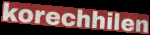
korechhilen